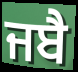
ਜਬੈ